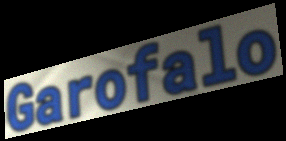
Garofalo